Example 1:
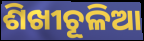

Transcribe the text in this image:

ଶିଖୀଚୂଳିଆ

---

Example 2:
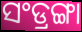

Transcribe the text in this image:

ସଂଡ୍ରଙ୍ଗା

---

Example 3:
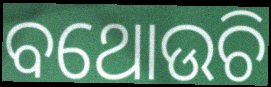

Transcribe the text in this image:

ବଥୋଉଚି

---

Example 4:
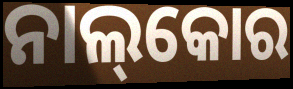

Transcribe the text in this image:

ନାଲ୍‌କୋର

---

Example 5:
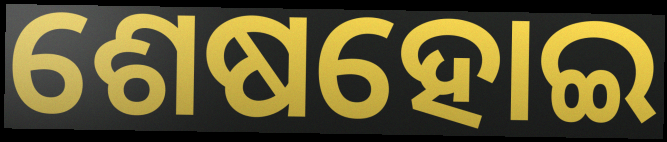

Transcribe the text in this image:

ଶେଷହୋଇ